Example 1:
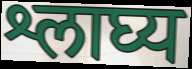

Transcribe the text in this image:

श्लाघ्य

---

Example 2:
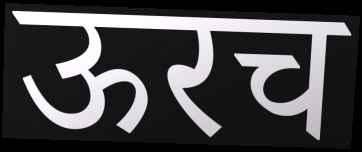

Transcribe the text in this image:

ऊरच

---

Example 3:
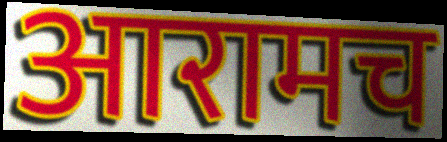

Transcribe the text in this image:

आरामच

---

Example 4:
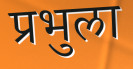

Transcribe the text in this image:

प्रभुला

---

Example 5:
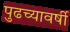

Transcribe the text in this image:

पुढच्यावर्षी